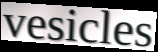
vesicles